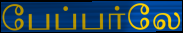
பேப்பர்லே